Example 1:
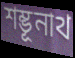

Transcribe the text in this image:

শম্ভূনাথ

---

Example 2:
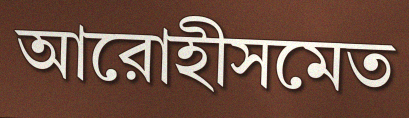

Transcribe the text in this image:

আরোহীসমেত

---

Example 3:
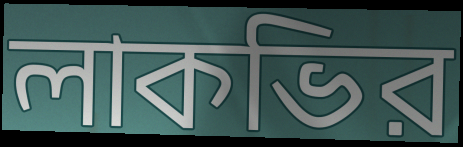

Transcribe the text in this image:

লাকভির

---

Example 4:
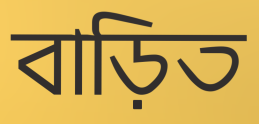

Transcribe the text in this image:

বাড়িত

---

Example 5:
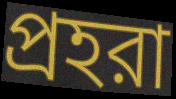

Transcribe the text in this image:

প্রহরা